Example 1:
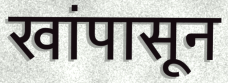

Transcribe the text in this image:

खांपासून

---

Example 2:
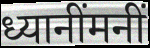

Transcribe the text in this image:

ध्यानींमनीं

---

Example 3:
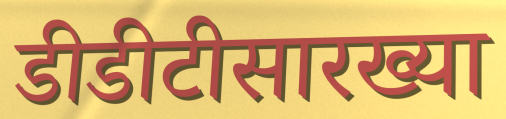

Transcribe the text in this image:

डीडीटीसारख्या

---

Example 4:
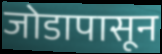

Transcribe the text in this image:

जोडापासून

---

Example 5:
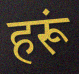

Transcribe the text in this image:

हरूं